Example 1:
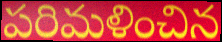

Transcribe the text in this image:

పరిమళించిన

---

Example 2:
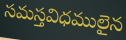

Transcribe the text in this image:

సమస్తవిధములైన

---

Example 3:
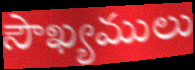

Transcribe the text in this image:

సౌఖ్యములు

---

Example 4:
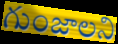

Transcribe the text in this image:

గుంజాలని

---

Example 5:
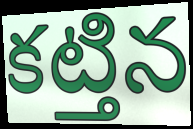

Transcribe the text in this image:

కట్తిన